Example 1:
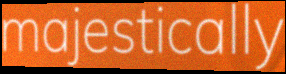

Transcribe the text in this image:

majestically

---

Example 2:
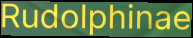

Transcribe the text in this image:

Rudolphinae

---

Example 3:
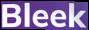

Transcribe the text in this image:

Bleek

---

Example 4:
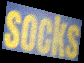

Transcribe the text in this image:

socks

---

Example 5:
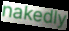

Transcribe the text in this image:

nakedly